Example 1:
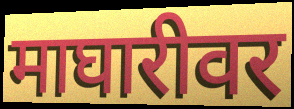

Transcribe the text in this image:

माघारीवर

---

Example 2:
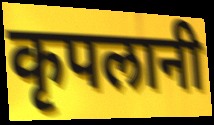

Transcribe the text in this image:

कृपलानी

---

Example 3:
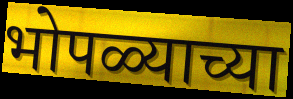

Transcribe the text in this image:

भोपळ्याच्या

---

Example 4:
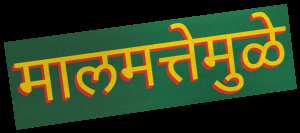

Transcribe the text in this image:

मालमत्तेमुळे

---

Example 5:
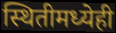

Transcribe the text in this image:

स्थितीमध्येही